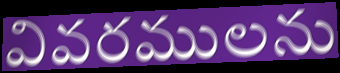
వివరములను